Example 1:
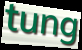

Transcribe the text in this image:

tung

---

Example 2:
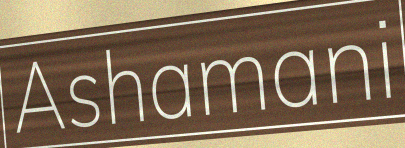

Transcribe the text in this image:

Ashamani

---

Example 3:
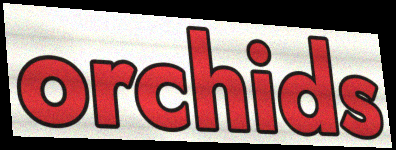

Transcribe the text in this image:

orchids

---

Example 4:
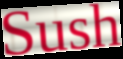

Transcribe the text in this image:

Sush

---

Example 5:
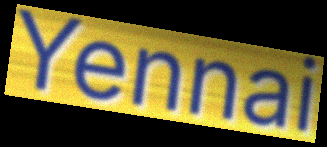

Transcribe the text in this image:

Yennai